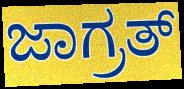
ಜಾಗ್ರತ್